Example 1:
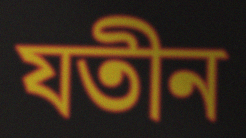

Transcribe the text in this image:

যতীন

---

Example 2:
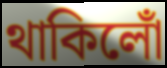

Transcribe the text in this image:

থাকিলোঁ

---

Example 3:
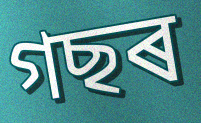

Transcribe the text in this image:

গছৰ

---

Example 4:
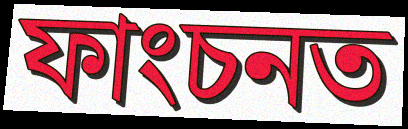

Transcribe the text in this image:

ফাংচনত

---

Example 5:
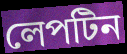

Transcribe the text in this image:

লেপটিন